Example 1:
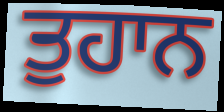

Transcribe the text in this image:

ਤੁਹਾਨ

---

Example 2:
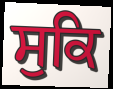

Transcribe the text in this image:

ਸੁਕਿ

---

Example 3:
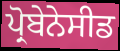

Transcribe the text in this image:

ਪ੍ਰੋਬੇਨੇਸੀਡ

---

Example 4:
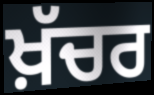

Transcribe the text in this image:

ਖ਼ੱਚਰ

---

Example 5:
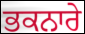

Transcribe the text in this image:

ਭਕਨਾਰੇ